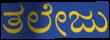
ತಲೇಜು